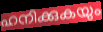
ഹനിക്കുകയും